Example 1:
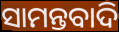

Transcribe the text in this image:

ସାମନ୍ତବାଦି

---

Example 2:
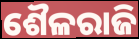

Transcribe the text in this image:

ଶୈଳରାଜି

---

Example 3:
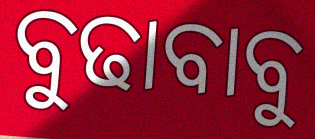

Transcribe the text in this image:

ବୁଢାବାବୁ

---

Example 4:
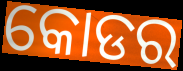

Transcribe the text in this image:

କୋଡର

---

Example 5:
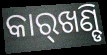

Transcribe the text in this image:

କାର୍‌ଖଣ୍ଡି